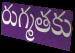
రుగ్మతకు